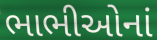
ભાભીઓનાં